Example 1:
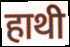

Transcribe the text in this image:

हाथी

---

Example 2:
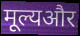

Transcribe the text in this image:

मूल्यऔर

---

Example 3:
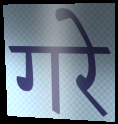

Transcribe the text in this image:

गरे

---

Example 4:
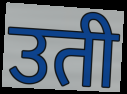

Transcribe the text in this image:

उती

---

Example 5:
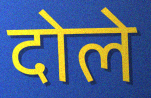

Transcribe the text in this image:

दोले